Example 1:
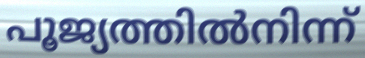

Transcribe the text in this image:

പൂജ്യത്തിൽനിന്ന്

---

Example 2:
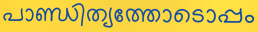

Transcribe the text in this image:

പാണ്ഡിത്യത്തോടൊപ്പം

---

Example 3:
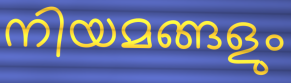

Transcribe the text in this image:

നിയമങ്ങളും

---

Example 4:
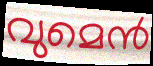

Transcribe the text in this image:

വുമെൻ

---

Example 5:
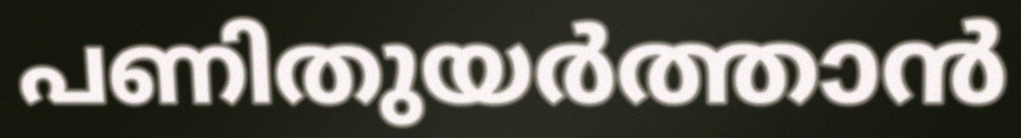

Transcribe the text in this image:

പണിതുയർത്താൻ